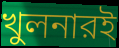
খুলনারই